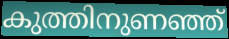
കുത്തിനുണഞ്ഞ്